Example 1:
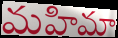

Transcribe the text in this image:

మహిమా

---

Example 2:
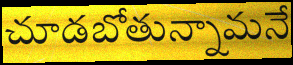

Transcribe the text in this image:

చూడబోతున్నామనే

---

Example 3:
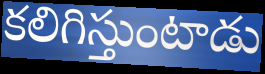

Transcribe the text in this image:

కలిగిస్తుంటాడు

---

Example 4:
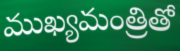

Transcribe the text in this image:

ముఖ్యమంత్రితో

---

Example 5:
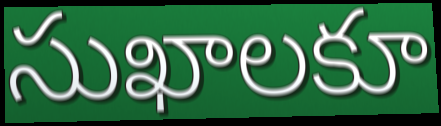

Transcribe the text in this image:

సుఖాలకూ